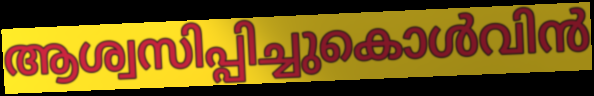
ആശ്വസിപ്പിച്ചുകൊൾവിൻ